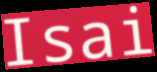
Isai